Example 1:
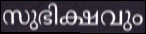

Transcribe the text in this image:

സുഭിക്ഷവും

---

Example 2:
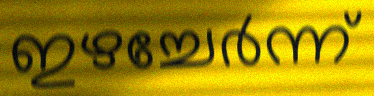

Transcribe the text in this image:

ഇഴച്ചേർന്ന്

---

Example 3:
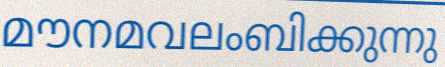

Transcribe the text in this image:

മൗനമവലംബിക്കുന്നു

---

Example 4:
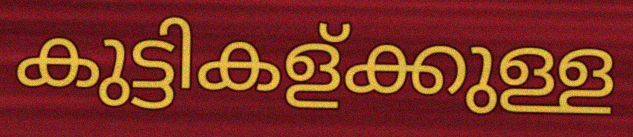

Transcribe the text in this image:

കുട്ടികള്ക്കുള്ള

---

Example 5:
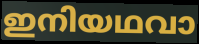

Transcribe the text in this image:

ഇനിയഥവാ